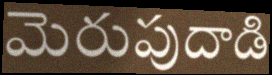
మెరుపుదాడి